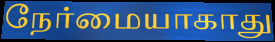
நேர்மையாகாது